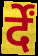
र्दें